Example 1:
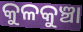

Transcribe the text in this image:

କୁଳକୁଞ୍ଚା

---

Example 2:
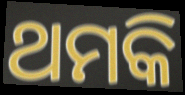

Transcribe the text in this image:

ଥମକି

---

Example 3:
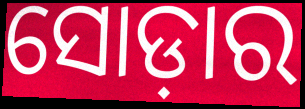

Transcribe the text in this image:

ସୋଡ଼ାର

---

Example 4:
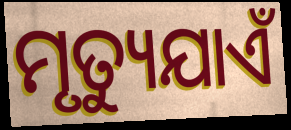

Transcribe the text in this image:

ମୃତ୍ୟୁଯାଏଁ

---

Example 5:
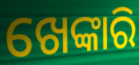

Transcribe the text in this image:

ଖେଙ୍କାରି